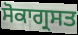
ਸੋਕਾਗ੍ਰਸਤ